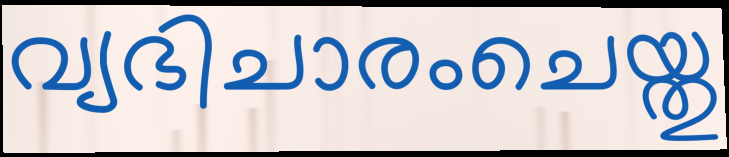
വ്യഭിചാരംചെയ്തു